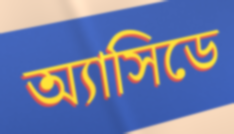
অ্যাসিডে